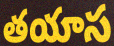
తయాస